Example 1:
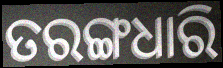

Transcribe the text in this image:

ତରଙ୍ଗଧାରି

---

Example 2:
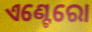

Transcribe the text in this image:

ଏଣ୍ଟେରୋ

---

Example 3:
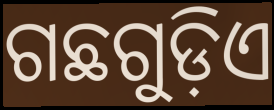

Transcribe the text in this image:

ଗଛଗୁଡ଼ିଏ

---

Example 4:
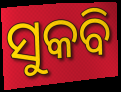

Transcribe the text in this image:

ସୁକବି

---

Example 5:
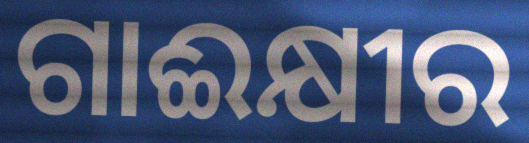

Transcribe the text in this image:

ଗାଈକ୍ଷୀର